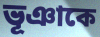
ভূঞাকে